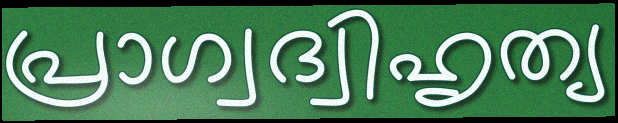
പ്രാഗ്വദ്വിഹൃത്യ